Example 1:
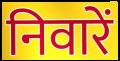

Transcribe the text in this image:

निवारें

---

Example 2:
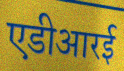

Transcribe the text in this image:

एडीआरई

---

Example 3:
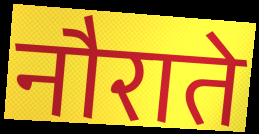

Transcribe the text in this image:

नौराते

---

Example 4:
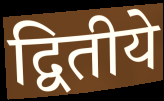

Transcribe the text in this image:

द्वितीये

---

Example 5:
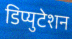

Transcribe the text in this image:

डिप्युटेशन